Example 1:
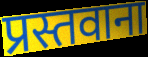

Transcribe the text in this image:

प्रस्तवाना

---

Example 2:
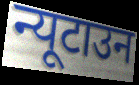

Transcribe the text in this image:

न्यूटाउन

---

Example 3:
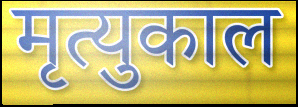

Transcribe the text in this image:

मृत्युकाल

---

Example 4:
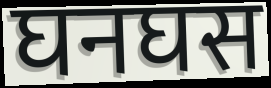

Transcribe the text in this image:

घनघस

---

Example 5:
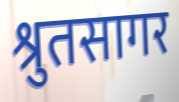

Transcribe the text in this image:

श्रुतसागर